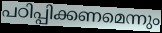
പഠിപ്പിക്കണമെന്നും